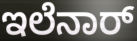
ಇಲೆನಾರ್